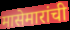
मासेमारांची